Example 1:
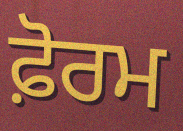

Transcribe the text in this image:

ਫ਼ੋਰਮ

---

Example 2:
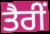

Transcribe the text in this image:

ਤੈਰੀਂ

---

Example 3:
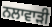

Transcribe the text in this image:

ਨਲਾਵਾੜੀ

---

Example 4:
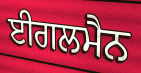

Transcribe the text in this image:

ਈਗਲਮੈਨ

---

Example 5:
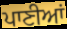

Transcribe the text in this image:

ਪਾਣੀਆਂ